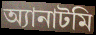
অ্যানাটমি